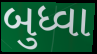
બુધ્વા